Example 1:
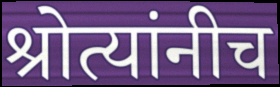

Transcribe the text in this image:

श्रोत्यांनीच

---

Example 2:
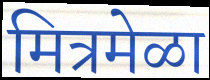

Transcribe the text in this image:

मित्रमेळा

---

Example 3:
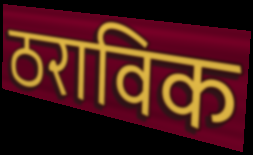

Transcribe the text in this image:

ठराविक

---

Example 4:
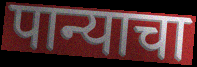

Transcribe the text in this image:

पान्याचा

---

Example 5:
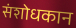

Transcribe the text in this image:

संशोधकान